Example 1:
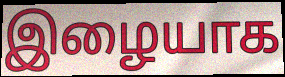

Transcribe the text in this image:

இழையாக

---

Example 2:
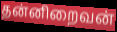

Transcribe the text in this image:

தன்னிறைவன்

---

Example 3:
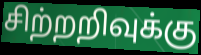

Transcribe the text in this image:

சிற்றறிவுக்கு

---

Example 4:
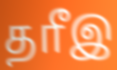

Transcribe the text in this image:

தரீஇ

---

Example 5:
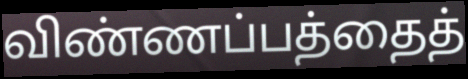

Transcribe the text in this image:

விண்ணப்பத்தைத்